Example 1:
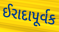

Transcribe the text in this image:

ઈરાદાપૂર્વક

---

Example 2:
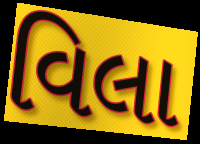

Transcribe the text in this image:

વિલા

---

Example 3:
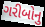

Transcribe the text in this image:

ગરીબોનુ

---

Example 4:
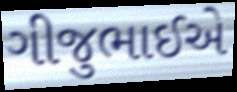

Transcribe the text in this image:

ગીજુભાઈએ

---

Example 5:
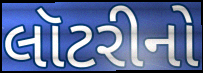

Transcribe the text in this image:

લૉટરીનો